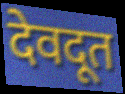
देवदूत